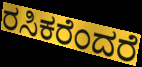
ರಸಿಕರೆಂದರೆ